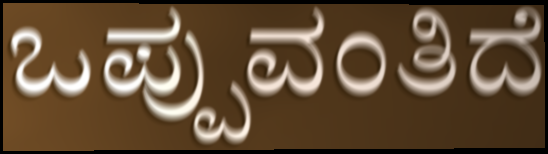
ಒಪ್ಪುವಂತಿದೆ